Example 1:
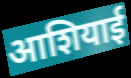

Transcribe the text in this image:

आशियाई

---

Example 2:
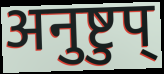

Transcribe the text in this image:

अनुष्टुप्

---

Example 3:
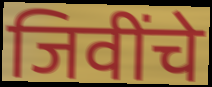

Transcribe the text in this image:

जिवींचे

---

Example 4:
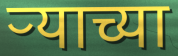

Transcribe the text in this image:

ऱ्याच्या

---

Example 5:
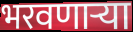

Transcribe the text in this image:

भरवणाऱ्या